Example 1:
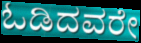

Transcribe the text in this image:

ಓಡಿದವರೇ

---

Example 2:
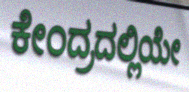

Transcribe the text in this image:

ಕೇಂದ್ರದಲ್ಲಿಯೇ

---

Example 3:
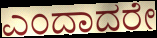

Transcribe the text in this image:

ಎಂದಾದರೇ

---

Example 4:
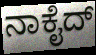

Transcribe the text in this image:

ನಾಕೈದ್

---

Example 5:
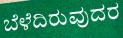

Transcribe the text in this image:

ಬೆಳೆದಿರುವುದರ